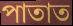
পাতাত